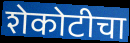
शेकोटीचा